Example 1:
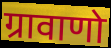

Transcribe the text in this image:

ग्रावाणो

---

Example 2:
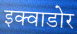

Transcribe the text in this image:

इक्‍वाडोर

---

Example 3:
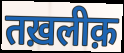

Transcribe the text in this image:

तख़लीक़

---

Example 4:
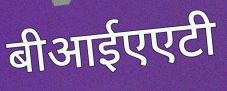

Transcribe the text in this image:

बीआईएएटी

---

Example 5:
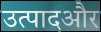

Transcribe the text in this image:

उत्पादऔर